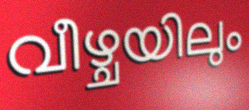
വീഴ്ചയിലും